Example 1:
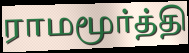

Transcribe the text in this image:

ராமமூர்த்தி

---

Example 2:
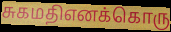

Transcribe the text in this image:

சுகமதிஎனக்கொரு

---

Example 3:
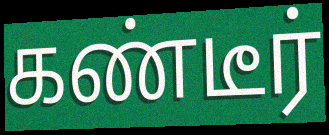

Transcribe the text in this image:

கண்டீர்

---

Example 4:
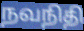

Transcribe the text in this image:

நவநிதி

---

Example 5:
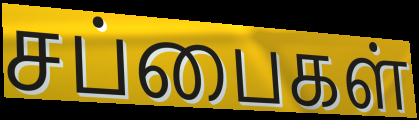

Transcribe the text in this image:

சப்பைகள்